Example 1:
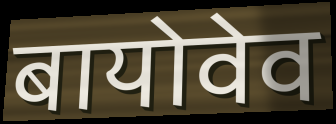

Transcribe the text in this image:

बायोवेव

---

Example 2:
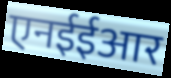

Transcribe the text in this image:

एनईईआर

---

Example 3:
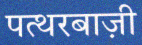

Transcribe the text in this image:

पत्थरबाज़ी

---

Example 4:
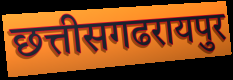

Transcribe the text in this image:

छत्तीसगढरायपुर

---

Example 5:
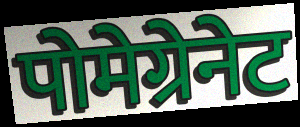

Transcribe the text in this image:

पोमेग्रेनेट